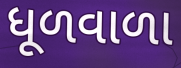
ધૂળવાળા